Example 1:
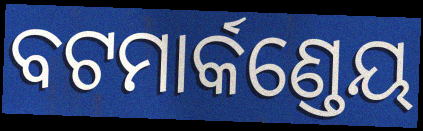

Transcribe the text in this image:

ବଟମାର୍କଣ୍ଡେୟ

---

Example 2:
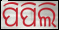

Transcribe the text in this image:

ପିପିଲି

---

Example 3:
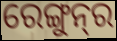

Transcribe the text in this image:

ରେଙ୍ଗୁନ୍‌ର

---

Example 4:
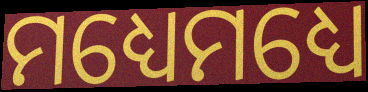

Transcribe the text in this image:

ମଧ୍ୟେମଧ୍ୟେ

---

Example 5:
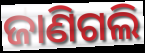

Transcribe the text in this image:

ଜାଣିଗଲି